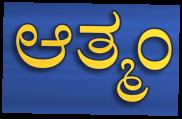
ಆತ್ಮಂ